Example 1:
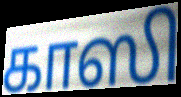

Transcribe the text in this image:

காஸி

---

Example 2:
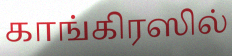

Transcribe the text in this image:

காங்கிரஸில்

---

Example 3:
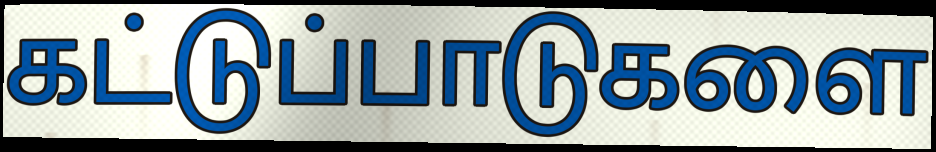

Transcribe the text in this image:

கட்டுப்பாடுகளை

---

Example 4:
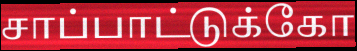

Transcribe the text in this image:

சாப்பாட்டுக்கோ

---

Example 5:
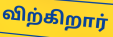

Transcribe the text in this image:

விற்கிறார்